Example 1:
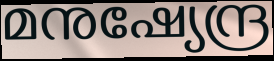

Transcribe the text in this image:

മനുഷ്യേന്ദ്ര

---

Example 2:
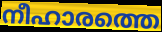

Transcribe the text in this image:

നീഹാരത്തെ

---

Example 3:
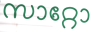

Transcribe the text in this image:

സാറ്റോ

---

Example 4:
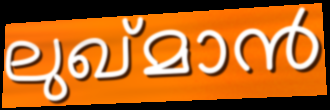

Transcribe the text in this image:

ലുഖ്മാൻ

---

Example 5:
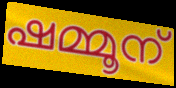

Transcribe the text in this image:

ഷമ്മൂന്